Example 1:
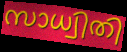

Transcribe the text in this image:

സാധ്വിതി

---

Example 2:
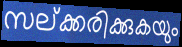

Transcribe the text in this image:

സല്ക്കരിക്കുകയും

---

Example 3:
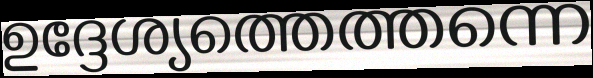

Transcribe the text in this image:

ഉദ്ദേശ്യത്തെത്തന്നെ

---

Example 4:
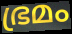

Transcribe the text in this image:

ഭ്രമം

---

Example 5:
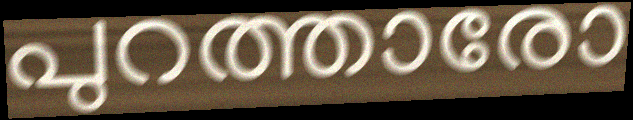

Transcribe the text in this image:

പുറത്താരോ